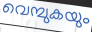
വെമ്പുകയും